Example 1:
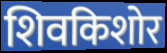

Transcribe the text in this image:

शिवकिशोर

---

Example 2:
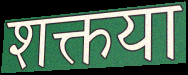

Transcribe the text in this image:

शक्तया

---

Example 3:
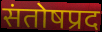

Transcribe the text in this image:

संतोषप्रद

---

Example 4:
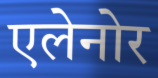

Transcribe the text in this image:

एलेनोर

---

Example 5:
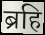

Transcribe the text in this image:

ब्रहि